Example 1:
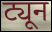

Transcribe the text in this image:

ट्यून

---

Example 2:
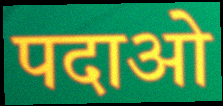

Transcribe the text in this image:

पदाओ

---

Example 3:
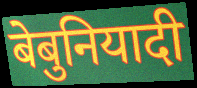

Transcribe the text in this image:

बेबुनियादी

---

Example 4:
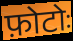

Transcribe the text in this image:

फ़ोटोः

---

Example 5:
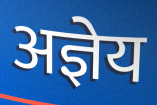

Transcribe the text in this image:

अज्ञेय